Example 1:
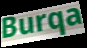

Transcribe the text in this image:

Burqa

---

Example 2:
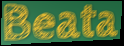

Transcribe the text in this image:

Beata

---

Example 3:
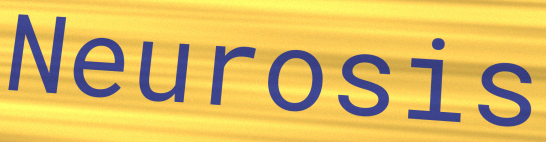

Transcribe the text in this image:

Neurosis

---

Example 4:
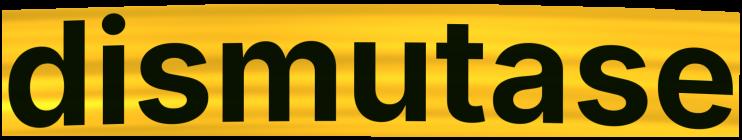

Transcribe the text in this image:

dismutase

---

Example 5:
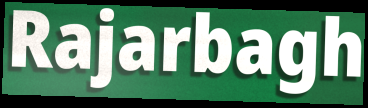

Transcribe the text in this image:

Rajarbagh